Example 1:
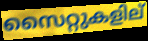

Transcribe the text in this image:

സൈറ്റുകളില്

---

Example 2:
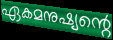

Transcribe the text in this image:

ഏകമനുഷ്യന്റെ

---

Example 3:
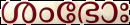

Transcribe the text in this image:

ശംഭോഃ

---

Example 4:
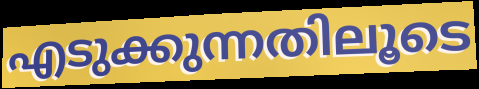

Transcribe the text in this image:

എടുക്കുന്നതിലൂടെ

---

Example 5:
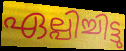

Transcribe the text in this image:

ഏല്പിച്ചിട്ടു